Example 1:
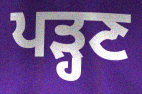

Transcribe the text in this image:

ਪੜ੍ਹਣ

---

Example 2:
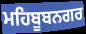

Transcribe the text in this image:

ਮਹਿਬੂਬਨਗਰ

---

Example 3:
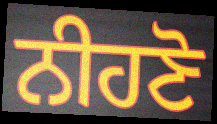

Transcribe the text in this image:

ਨੀਹਣੋ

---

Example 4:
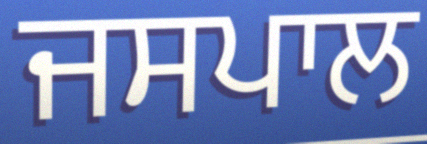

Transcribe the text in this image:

ਜਸਪਾਲ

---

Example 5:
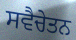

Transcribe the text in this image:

ਸਵੈਚੇਤਨ